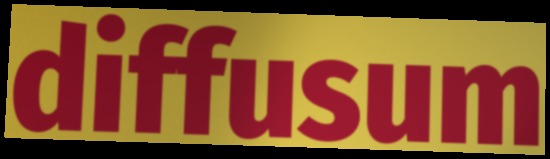
diffusum